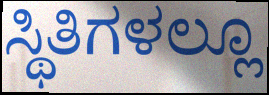
ಸ್ಥಿತಿಗಳಲ್ಲೂ